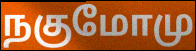
நகுமோமு